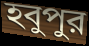
হবুপুর